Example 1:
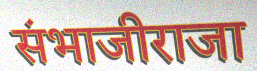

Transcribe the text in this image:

संभाजीराजा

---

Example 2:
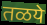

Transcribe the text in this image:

तळये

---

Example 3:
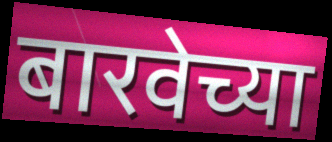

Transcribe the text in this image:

बारवेच्या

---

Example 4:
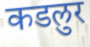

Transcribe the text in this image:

कडलुर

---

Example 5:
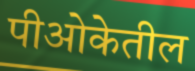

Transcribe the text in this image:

पीओकेतील